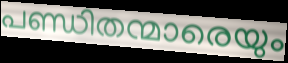
പണ്ഡിതന്മാരെയും